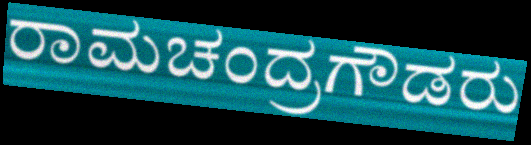
ರಾಮಚಂದ್ರಗೌಡರು